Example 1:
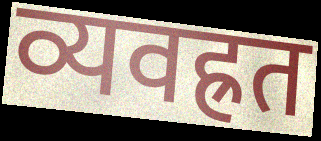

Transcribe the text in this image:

व्यवह्रत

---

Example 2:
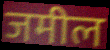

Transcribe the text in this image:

जमील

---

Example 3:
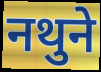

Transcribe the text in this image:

नथुने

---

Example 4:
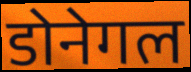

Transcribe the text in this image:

डोनेगल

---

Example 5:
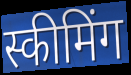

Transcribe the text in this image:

स्कीमिंग